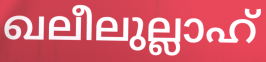
ഖലീലുല്ലാഹ്